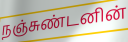
நஞ்சுண்டனின்